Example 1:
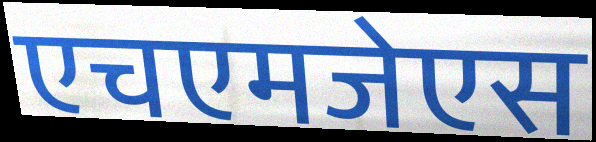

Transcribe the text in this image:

एचएमजेएस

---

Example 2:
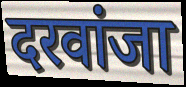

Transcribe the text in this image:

दरवांजा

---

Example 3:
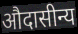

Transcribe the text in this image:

औदासीन्य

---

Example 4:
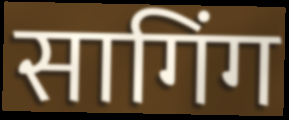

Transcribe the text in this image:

सागिंग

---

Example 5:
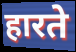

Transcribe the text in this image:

हारते